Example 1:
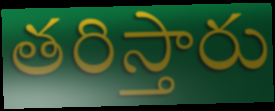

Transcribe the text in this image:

తరిస్తారు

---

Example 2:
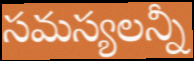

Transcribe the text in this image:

సమస్యలన్నీ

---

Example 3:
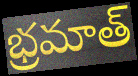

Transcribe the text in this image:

భ్రమాత్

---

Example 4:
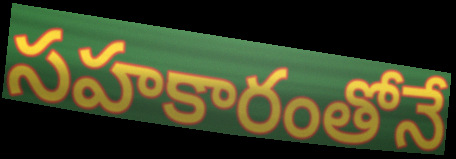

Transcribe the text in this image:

సహకారంతోనే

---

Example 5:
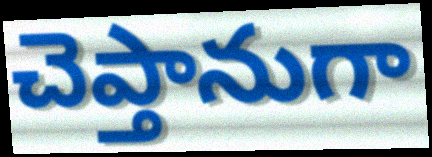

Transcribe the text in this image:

చెప్తానుగా